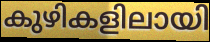
കുഴികളിലായി